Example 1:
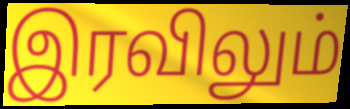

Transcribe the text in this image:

இரவிலும்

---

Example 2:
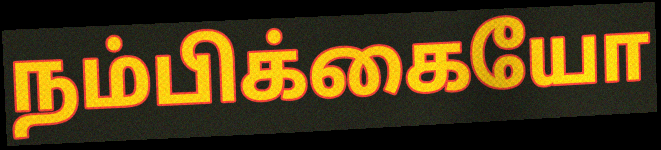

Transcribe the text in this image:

நம்பிக்கையோ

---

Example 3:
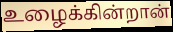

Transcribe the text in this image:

உழைக்கின்றான்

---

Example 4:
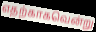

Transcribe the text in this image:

எதற்காகவென்று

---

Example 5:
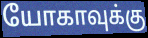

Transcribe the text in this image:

யோகாவுக்கு